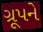
ગ્રૂપને